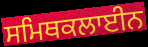
ਸਮਿਥਕਲਾਈਨ